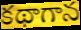
కథాగాన